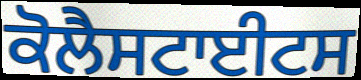
ਕੋਲੈਸਟਾਈਟਸ